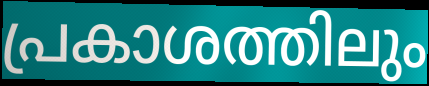
പ്രകാശത്തിലും